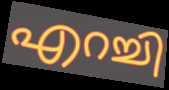
എറച്ചി